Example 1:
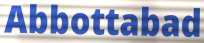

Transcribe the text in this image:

Abbottabad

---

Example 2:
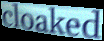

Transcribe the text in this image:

cloaked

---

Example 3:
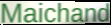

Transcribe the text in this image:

Maichand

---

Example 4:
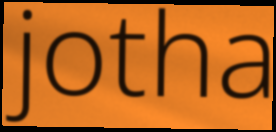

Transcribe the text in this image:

jotha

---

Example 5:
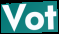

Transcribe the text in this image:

Vot